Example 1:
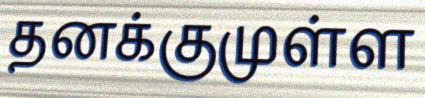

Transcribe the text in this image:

தனக்குமுள்ள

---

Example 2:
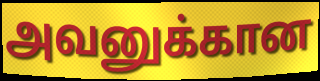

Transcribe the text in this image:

அவனுக்கான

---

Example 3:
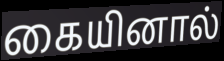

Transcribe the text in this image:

கையினால்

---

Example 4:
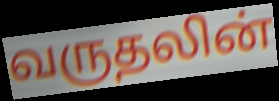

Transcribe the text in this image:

வருதலின்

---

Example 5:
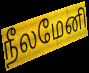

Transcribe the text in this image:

நீலமேனி